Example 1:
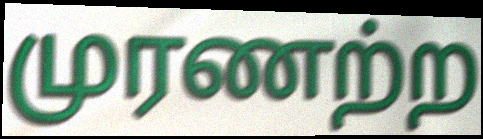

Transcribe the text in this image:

முரணற்ற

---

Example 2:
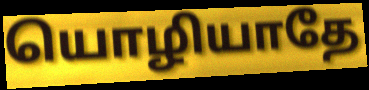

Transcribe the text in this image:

யொழியாதே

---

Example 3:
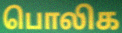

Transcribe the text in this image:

பொலிக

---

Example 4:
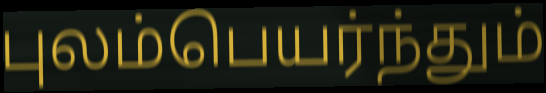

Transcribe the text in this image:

புலம்பெயர்ந்தும்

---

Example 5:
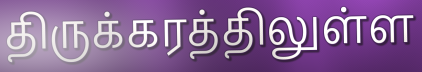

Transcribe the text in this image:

திருக்கரத்திலுள்ள